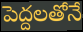
పెద్దలతోనే